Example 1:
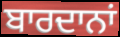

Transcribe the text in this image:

ਬਾਰਦਾਨਾਂ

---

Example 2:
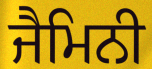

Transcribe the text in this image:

ਜੈਮਿਨੀ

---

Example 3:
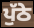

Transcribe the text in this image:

ਪੁੱਠੇ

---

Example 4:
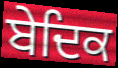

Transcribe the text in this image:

ਬੇਦਿਕ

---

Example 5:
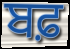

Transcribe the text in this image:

ਬਫ਼